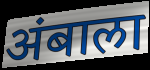
अंबाला